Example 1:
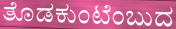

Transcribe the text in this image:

ತೊಡಕುಂಟೆಂಬುದ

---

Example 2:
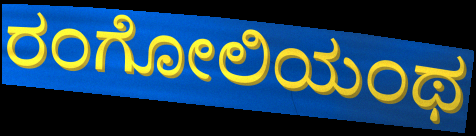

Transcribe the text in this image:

ರಂಗೋಲಿಯಂಥ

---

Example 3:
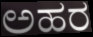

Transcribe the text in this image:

ಅಹರ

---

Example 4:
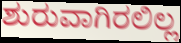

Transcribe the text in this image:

ಶುರುವಾಗಿರಲಿಲ್ಲ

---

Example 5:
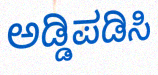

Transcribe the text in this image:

ಅಡ್ಡಿಪಡಿಸಿ